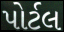
પોર્ટલ